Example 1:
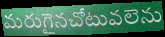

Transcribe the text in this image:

మరుగైనచోటువలెను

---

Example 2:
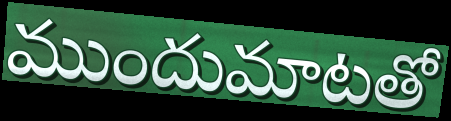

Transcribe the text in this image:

ముందుమాటతో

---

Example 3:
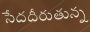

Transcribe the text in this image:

సేదదీరుతున్న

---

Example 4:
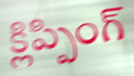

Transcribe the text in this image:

క్లిప్పింగ్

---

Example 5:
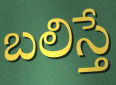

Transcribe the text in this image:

బలిస్తే